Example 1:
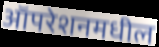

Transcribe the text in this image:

ऑपरेशनमधील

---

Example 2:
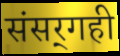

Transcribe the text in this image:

संसर्गही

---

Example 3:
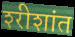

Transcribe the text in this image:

श्रीशांत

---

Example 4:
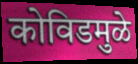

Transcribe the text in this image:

कोविडमुळे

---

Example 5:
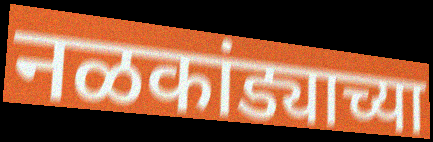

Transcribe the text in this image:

नळकांड्याच्या